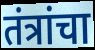
तंत्रांचा